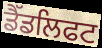
ਡੈੱਡਲਿਫਟ